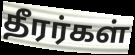
தீரர்கள்